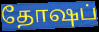
தோஷப்